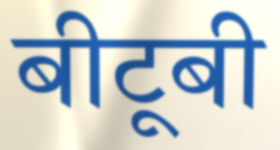
बीटूबी